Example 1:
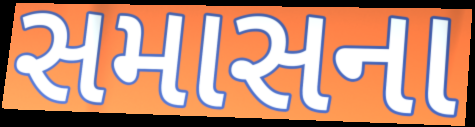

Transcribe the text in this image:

સમાસના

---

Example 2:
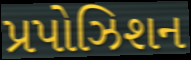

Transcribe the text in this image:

પ્રપોઝિશન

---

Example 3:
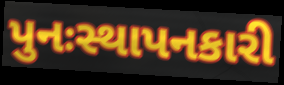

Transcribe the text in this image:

પુનઃસ્થાપનકારી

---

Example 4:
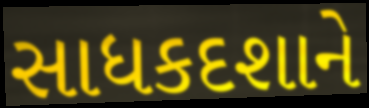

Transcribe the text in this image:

સાધકદશાને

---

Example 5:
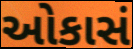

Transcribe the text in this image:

ઓકાસં